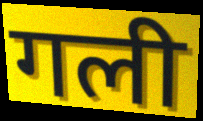
गली